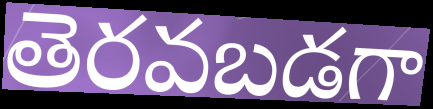
తెరవబడగా